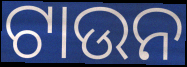
ଟାଉନ